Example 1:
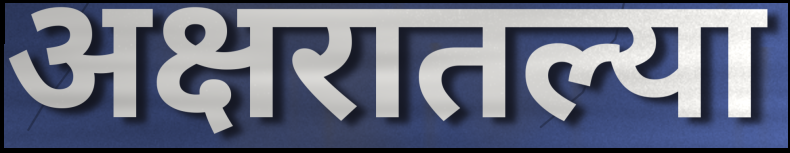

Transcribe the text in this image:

अक्षरातल्या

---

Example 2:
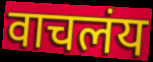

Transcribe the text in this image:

वाचलंय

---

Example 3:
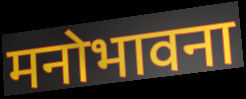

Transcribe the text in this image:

मनोभावना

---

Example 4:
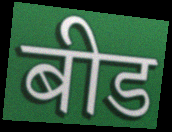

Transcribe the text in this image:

बीड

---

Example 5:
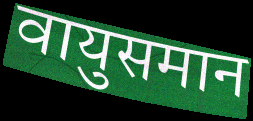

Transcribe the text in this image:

वायुसमान